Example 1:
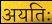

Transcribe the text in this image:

अयतिः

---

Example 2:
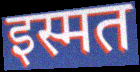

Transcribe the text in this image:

इस्मत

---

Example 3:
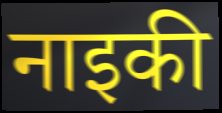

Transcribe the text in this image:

नाइकी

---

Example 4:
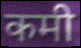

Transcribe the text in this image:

कमी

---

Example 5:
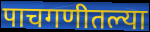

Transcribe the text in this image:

पाचगणीतल्या